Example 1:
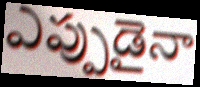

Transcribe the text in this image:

ఎప్పుడైనా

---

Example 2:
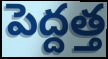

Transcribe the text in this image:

పెద్దత్త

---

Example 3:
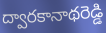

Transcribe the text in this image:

ద్వారకానాథరెడ్డి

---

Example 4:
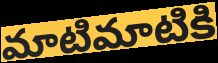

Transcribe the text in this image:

మాటిమాటికి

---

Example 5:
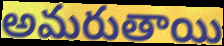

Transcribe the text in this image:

అమరుతాయి